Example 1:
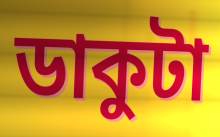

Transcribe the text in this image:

ডাকুটা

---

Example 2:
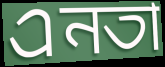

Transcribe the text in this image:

এনতা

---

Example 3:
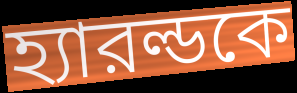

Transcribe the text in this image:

হ্যারল্ডকে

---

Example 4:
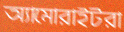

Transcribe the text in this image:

অ্যামোরাইটরা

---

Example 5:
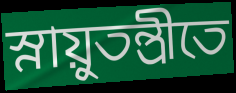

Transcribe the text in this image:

স্নায়ুতন্ত্রীতে